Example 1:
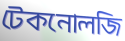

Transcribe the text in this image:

টেকনোলজি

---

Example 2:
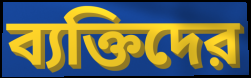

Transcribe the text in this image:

ব্যক্তিদের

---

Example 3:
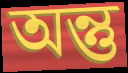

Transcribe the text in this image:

অন্তু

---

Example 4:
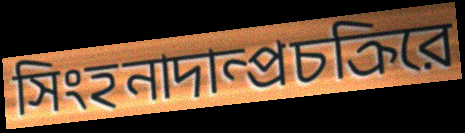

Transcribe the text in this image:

সিংহনাদান্প্রচক্রিরে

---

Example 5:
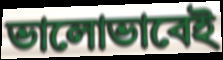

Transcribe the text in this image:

ভালোভাবেই